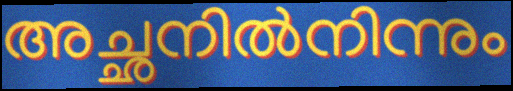
അച്ഛനിൽനിന്നും